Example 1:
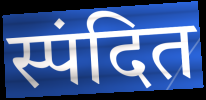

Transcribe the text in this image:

स्पंदित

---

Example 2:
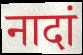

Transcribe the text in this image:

नादां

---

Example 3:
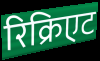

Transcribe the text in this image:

रिक्रिएट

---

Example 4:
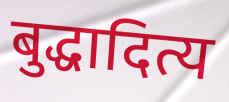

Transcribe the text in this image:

बुद्धादित्य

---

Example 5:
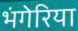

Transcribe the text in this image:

भंगेरिया